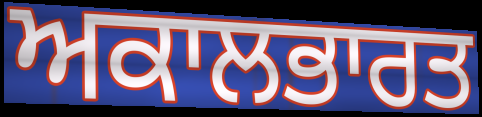
ਅਕਾਲਭਾਰਤ